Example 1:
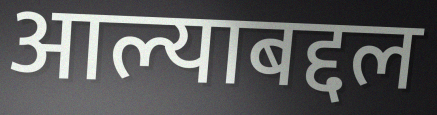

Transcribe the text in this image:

आल्याबद्दल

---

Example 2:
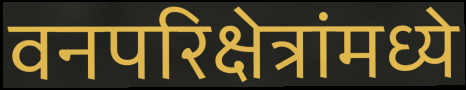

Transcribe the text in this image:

वनपरिक्षेत्रांमध्ये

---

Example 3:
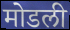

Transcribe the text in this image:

मोडली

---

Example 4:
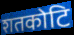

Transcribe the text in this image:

शतकोटि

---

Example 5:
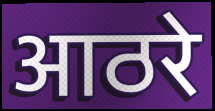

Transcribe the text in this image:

आठरे